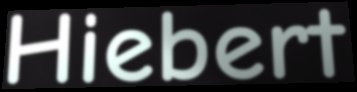
Hiebert